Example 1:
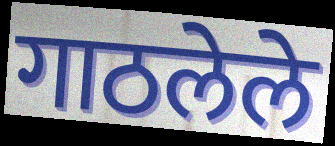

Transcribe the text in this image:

गाठलेले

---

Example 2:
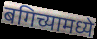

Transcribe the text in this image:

बगिच्यामध्ये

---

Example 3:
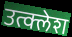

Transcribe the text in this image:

उत्क्लेश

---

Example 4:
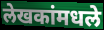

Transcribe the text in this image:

लेखकांमधले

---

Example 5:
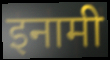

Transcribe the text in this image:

इनामी